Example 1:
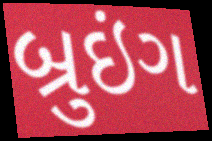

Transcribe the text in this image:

બ્રુઇંગ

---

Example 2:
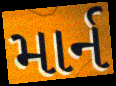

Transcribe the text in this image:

માર્ન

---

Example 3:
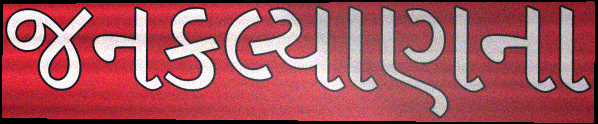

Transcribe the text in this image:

જનકલ્યાણના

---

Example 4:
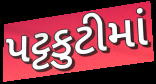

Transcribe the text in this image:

પટ્ટકુટીમાં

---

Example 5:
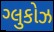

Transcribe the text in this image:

ગ્લુકોઝ